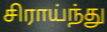
சிராய்ந்து